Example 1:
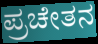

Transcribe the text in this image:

ಪ್ರಚೇತನ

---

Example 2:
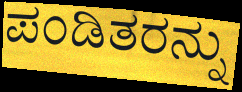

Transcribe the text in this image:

ಪಂಡಿತರನ್ನು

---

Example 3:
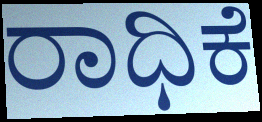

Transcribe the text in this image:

ರಾಧಿಕೆ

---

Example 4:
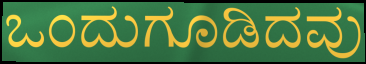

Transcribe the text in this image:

ಒಂದುಗೂಡಿದವು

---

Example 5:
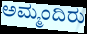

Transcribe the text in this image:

ಅಮ್ಮಂದಿರು